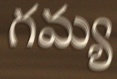
గమ్య